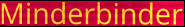
Minderbinder